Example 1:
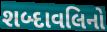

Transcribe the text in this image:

શબ્દાવલિનો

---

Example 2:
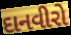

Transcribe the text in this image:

દાનવીરો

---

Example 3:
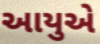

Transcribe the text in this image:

આયુએ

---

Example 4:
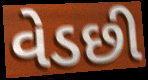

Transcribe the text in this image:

વેડછી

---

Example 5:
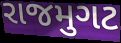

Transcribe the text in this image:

રાજમુગટ